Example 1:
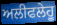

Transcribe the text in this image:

ਅਲੀਫਲੇਹੂ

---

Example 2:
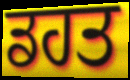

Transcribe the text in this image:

ਡਹਤ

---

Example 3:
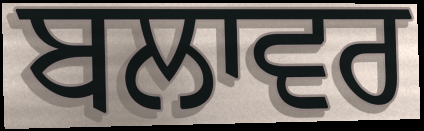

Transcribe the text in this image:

ਬਲਾਵਰ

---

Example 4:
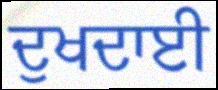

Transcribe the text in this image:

ਦੁਖਦਾਈ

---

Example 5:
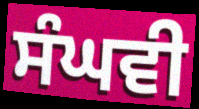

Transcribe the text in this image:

ਸੰਘਵੀ